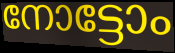
നോട്ടോം